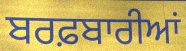
ਬਰਫ਼ਬਾਰੀਆਂ